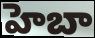
హెబా